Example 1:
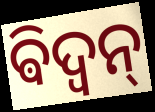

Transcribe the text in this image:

ଵିଦ୍ଵନ୍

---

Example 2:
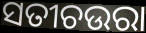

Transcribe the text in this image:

ସତୀଚଉରା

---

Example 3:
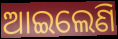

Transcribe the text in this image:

ଆଇଲେଣି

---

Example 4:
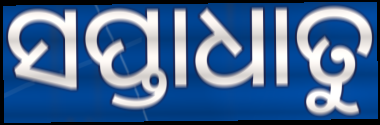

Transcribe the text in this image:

ସପ୍ତାଧାତୁ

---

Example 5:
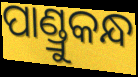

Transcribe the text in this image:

ପାଣ୍ଡ୍ରୁକନ୍ଧ